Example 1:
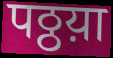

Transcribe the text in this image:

पठ्ठय़ा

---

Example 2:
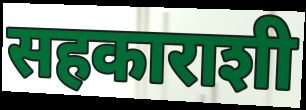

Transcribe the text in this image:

सहकाराशी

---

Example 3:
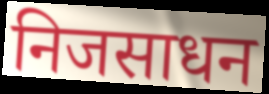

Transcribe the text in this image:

निजसाधन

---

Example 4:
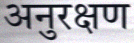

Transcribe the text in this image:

अनुरक्षण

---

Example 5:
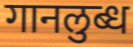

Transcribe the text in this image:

गानलुब्ध